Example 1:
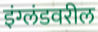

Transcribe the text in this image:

इंग्लंडवरील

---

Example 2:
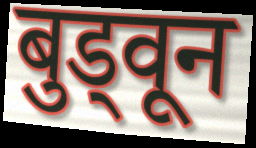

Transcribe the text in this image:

बुड्वून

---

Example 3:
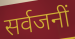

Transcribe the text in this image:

सर्वजनीं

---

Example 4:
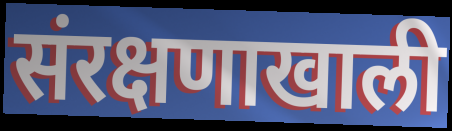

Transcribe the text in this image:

संरक्षणाखाली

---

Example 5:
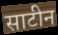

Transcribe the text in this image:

साटीन